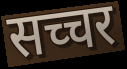
सच्चर